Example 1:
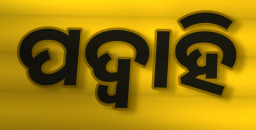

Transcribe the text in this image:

ପଦ୍ଵାହି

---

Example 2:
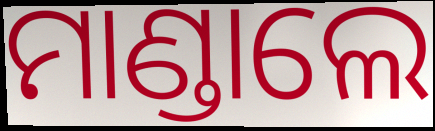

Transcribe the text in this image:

ମାଣ୍ଡାଲେ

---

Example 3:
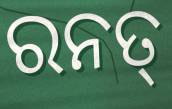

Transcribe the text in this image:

ରନତ୍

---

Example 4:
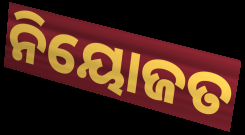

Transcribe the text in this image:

ନିୟୋଜତ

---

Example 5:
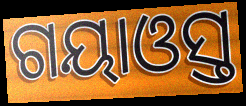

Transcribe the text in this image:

ଗୟାଓସ୍ତ